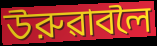
উৰুৱাবলৈ